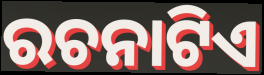
ରଚନାଟିଏ